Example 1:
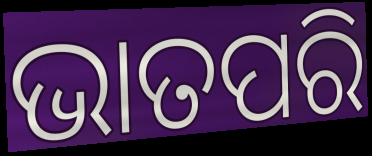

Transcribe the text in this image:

ଭାତପରି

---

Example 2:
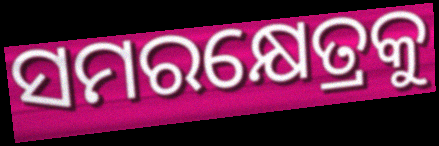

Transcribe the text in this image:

ସମରକ୍ଷେତ୍ରକୁ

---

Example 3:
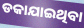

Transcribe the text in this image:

ଡକାଯାଇଥିବା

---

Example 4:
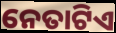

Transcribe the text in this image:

ନେତାଟିଏ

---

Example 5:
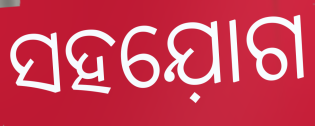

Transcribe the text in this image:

ସହଯ଼ୋଗ